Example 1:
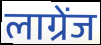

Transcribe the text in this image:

लाग्रेंज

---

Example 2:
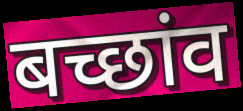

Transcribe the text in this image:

बच्छांव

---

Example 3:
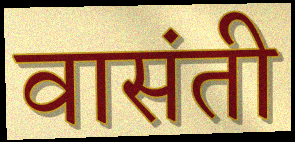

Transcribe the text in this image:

वासंती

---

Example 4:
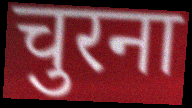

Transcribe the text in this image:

चुरना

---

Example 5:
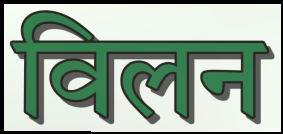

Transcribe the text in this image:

विलन